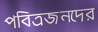
পবিত্রজনদের